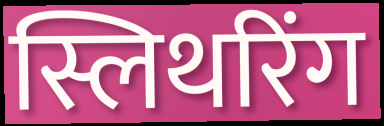
स्लिथरिंग